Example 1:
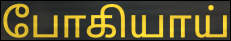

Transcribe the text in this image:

போகியாய்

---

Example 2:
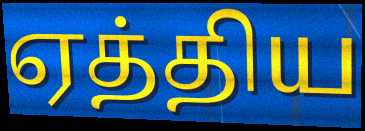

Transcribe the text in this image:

ஏத்திய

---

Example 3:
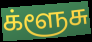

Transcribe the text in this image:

க்ளூசு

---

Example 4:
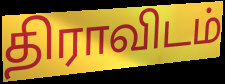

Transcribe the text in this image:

திராவிடம்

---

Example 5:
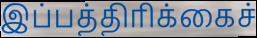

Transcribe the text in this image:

இப்பத்திரிக்கைச்